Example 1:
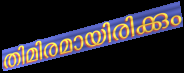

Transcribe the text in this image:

തിമിരമായിരിക്കും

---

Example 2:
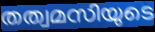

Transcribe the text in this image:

തത്വമസിയുടെ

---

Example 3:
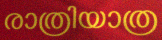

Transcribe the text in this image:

രാത്രിയാത്ര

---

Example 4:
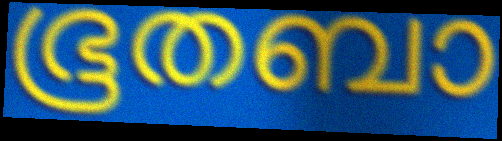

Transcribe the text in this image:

ഭൂതബാ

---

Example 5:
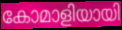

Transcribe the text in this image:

കോമാളിയായി